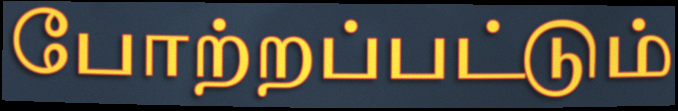
போற்றப்பட்டும்